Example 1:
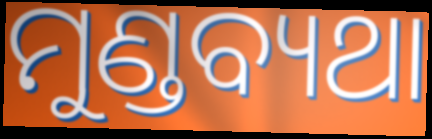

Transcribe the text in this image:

ମୁଣ୍ଡବ୍ୟଥା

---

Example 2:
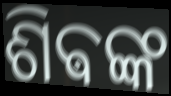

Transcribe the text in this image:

ଶିଵଙ୍କ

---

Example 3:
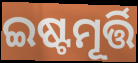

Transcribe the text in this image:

ଇଷ୍ଟମୂର୍ତ୍ତି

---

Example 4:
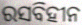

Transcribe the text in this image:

ରସବିହୀନ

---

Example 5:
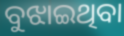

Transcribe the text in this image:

ବୁଝାଇଥିବା